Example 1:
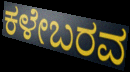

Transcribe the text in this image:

ಕಳೇಬರವ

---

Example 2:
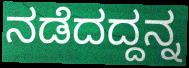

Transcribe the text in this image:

ನಡೆದದ್ದನ್ನ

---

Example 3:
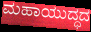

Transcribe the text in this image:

ಮಹಾಯುದ್ಧದ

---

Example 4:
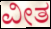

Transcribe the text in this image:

ವೀತ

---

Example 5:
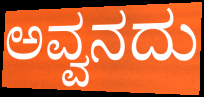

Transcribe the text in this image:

ಅವ್ವನದು